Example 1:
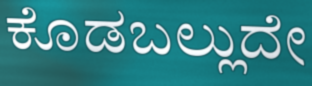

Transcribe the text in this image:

ಕೊಡಬಲ್ಲುದೇ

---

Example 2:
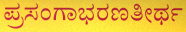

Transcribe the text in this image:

ಪ್ರಸಂಗಾಭರಣತೀರ್ಥ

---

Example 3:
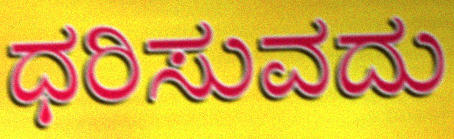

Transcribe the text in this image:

ಧರಿಸುವದು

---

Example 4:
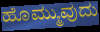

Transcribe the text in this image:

ಹೊಮ್ಮುವುದು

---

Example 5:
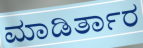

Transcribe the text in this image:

ಮಾಡಿರ್ತಾರ